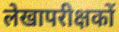
लेखापरीक्षकों